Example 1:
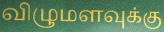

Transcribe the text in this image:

விழுமளவுக்கு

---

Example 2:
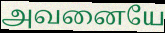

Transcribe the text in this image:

அவனையே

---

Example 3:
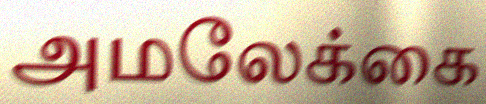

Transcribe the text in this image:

அமலேக்கை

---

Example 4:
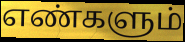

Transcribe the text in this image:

எண்களும்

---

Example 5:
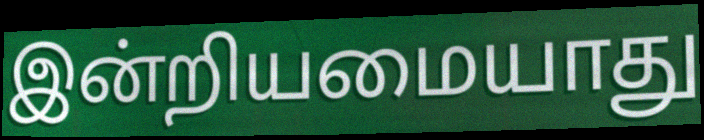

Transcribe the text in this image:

இன்றியமையாது